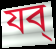
যব্